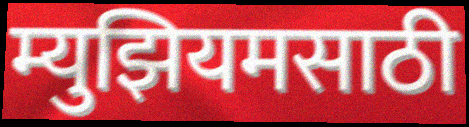
म्युझियमसाठी